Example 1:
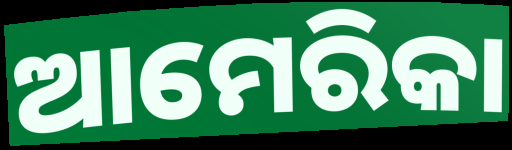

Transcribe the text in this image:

ଆମେରିକା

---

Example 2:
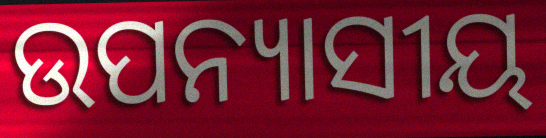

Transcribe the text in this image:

ଉପନ୍ୟାସୀୟ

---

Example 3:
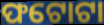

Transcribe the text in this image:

ଫଟୋଟା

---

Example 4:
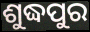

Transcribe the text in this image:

ଶୁଦ୍ଧପୁର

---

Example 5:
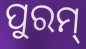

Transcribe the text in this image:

ପୁରମ୍